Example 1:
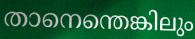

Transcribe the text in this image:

താനെന്തെങ്കിലും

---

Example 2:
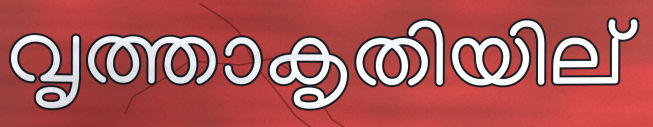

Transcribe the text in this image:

വൃത്താകൃതിയില്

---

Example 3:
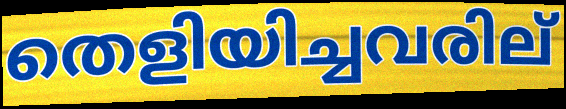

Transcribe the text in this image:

തെളിയിച്ചവരില്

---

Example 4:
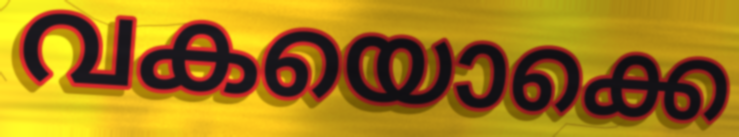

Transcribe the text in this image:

വകയൊക്കെ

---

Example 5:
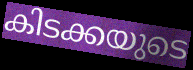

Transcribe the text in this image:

കിടക്കയുടെ